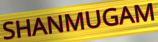
SHANMUGAM